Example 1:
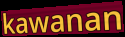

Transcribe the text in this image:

kawanan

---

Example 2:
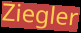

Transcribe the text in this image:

Ziegler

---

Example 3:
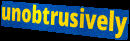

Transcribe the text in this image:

unobtrusively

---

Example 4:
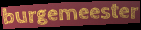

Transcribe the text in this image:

burgemeester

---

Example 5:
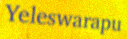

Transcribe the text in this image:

Yeleswarapu